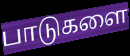
பாடுகளை